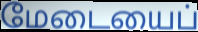
மேடையைப்